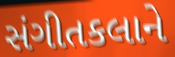
સંગીતકલાને